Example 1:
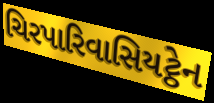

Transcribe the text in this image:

ચિરપારિવાસિયટ્ઠેન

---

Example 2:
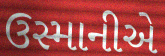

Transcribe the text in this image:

ઉસ્માનીએ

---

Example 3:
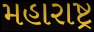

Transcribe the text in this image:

મહારાષ્ટ્ર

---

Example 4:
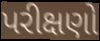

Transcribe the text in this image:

પરીક્ષણો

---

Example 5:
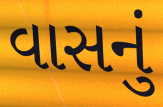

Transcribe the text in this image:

વાસનું